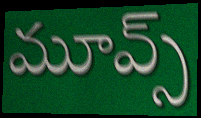
మూవ్స్